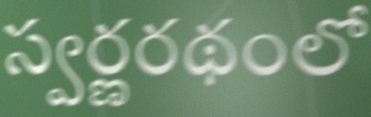
స్వర్ణరథంలో